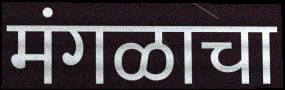
मंगळाचा